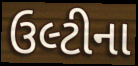
ઉલ્ટીના